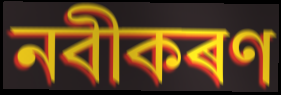
নবীকৰণ